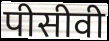
पीसीवी